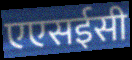
एएसईसी